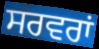
ਸਰਵਰਾਂ